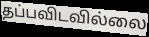
தப்பவிடவில்லை